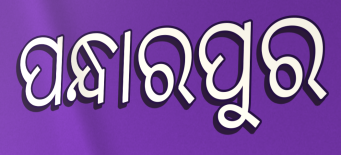
ପନ୍ଧାରପୁର